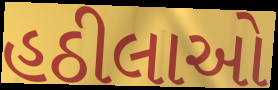
હઠીલાઓ